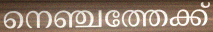
നെഞ്ചത്തേക്ക്